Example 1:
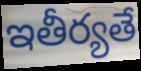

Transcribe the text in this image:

ఇతీర్యతే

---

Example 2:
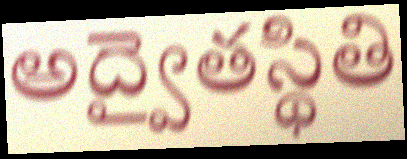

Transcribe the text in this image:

అద్వైతస్థితి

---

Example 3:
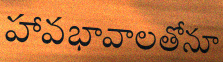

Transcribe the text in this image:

హావభావాలతోనూ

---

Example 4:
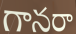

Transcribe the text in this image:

గానరా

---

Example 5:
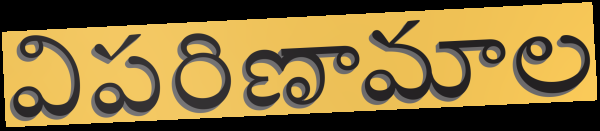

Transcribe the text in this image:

విపరిణామాల